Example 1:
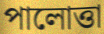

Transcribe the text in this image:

পালোত্তা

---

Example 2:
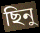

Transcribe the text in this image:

ছিনু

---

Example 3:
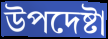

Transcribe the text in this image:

উপদেষ্টা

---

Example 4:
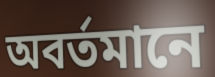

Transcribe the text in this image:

অবর্তমানে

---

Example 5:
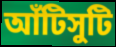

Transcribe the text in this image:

আঁটিসুটি